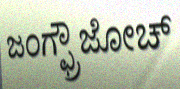
ಜಂಗ್ಫ್ರೌಜೋಚ್